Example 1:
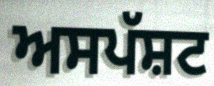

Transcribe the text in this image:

ਅਸਪੱਸ਼ਟ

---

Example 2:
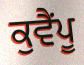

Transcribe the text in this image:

ਕੁਵੈਂਪੂ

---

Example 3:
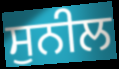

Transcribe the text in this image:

ਸੁਨੀਲ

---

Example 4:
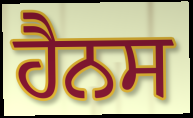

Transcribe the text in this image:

ਹੈਨਸ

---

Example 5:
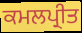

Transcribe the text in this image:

ਕਮਲਪ੍ਰੀਤ